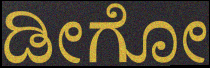
ಡೀಗೋ